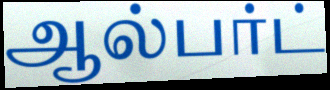
ஆல்பர்ட்